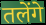
तलेंगे